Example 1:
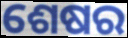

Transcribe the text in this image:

ଶେଷର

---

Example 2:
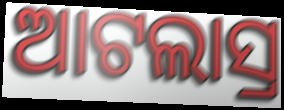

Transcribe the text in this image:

ଆଟଲାସ୍ର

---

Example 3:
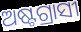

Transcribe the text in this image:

ଅଷ୍ଟଗ୍ରାସୀ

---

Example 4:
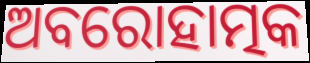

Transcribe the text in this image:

ଅବରୋହାତ୍ମକ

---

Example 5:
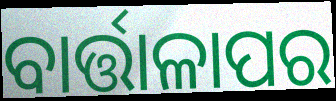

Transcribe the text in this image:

ବାର୍ତ୍ତାଳାପର